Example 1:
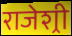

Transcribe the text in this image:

राजेश्री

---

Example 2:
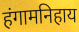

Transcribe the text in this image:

हंगामनिहाय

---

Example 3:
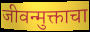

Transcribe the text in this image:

जीवन्मुक्ताचा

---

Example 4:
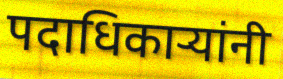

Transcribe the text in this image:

पदाधिकार्‍यांनी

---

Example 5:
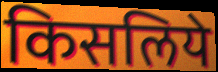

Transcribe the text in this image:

किसलिये